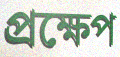
প্ৰক্ষেপ